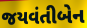
જયવંતીબેન